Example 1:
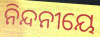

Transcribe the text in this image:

ନିନ୍ଦନୀୟେ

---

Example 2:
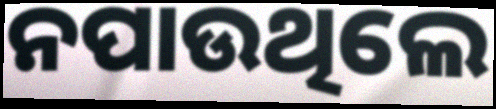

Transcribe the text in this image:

ନପାଉଥିଲେ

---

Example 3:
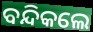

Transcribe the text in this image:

ବନ୍ଦିକଲେ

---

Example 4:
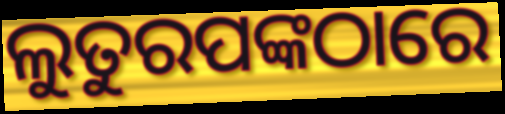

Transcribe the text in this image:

ଲୁତୁରପଙ୍କଠାରେ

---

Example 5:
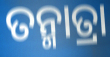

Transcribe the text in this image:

ତନ୍ମାତ୍ରା